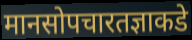
मानसोपचारतज्ञाकडे